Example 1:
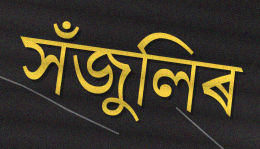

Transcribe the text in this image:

সঁজুলিৰ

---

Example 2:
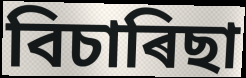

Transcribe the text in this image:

বিচাৰিছা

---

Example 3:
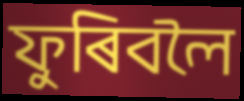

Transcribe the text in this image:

ফুৰিবলৈ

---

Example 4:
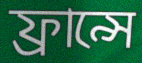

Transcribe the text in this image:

ফ্ৰান্সে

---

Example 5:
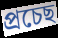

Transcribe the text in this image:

প্ৰচেছ